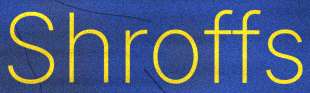
Shroffs